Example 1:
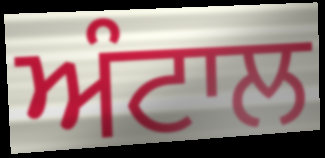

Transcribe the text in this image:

ਅੰਟਾਲ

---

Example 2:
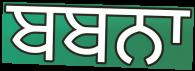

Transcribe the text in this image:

ਬਬਨਾ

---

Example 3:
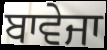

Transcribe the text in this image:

ਬਾਵੇਜਾ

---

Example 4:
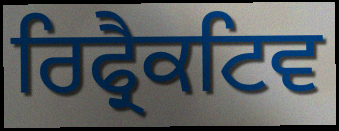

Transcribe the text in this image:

ਰਿਫ੍ਰੈਕਟਿਵ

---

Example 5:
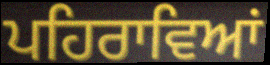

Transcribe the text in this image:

ਪਹਿਰਾਵਿਆਂ